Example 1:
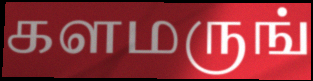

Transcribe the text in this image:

களமருங்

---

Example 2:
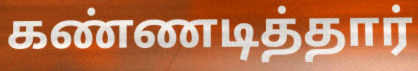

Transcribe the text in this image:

கண்ணடித்தார்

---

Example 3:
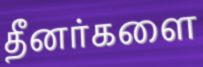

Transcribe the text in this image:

தீனர்களை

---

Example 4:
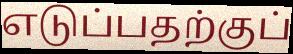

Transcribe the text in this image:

எடுப்பதற்குப்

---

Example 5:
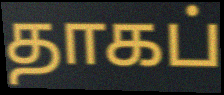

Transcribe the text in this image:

தாகப்